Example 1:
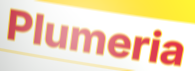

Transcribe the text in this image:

Plumeria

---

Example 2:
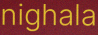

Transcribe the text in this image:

nighala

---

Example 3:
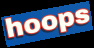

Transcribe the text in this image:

hoops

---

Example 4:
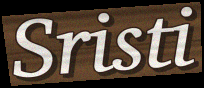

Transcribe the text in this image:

Sristi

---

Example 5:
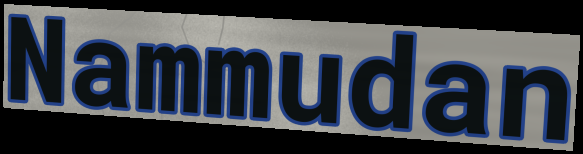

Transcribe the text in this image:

Nammudan